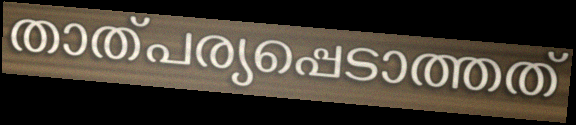
താത്പര്യപ്പെടാത്തത്